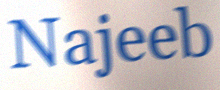
Najeeb